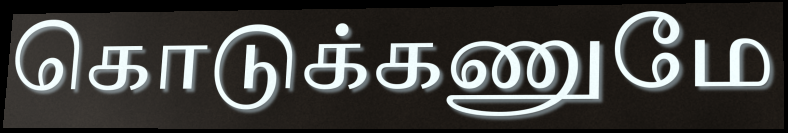
கொடுக்கணுமே